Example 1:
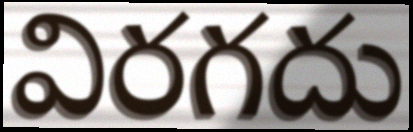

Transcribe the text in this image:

విరగదు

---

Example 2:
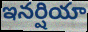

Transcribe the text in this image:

ఇనర్షియా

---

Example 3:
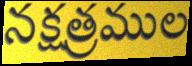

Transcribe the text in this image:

నక్షత్రముల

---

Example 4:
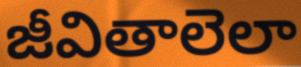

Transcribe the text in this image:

జీవితాలెలా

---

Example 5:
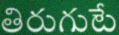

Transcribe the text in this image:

తిరుగుటే